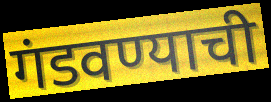
गंडवण्याची